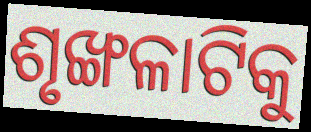
ଶୃଙ୍ଖଳାଟିକୁ